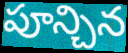
పూన్చిన